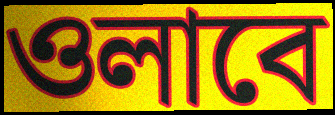
ওলাবে